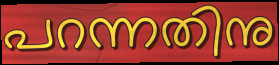
പറന്നതിനു